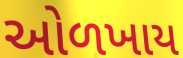
ઓળખાય